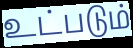
உட்படும்